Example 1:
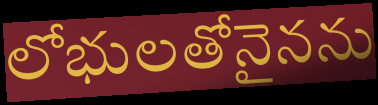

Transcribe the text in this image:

లోభులతోనైనను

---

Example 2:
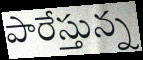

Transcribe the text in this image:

పారేస్తున్న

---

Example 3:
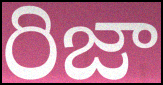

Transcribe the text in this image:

రిజా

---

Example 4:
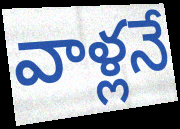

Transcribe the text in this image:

వాళ్లనే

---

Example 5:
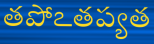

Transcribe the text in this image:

తపోఽతప్యత